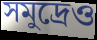
সমুদ্রেও